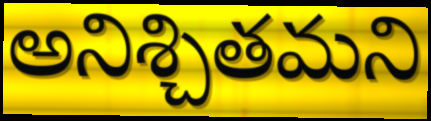
అనిశ్చితమని